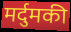
मर्दुमकी